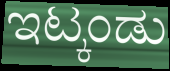
ಇಟ್ಕಂಡು